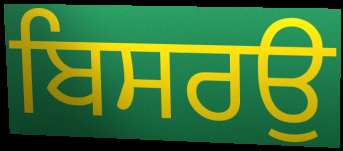
ਬਿਸਰਉ